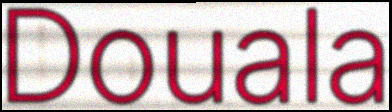
Douala